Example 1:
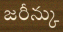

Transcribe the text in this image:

జరీన్కు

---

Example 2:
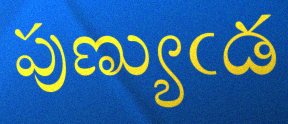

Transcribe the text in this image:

పుణ్యుఁడ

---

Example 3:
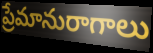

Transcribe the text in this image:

ప్రేమానురాగాలు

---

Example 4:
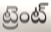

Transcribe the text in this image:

ట్రెంట్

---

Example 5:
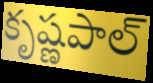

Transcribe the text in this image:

కృష్ణపాల్